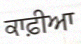
ਕਾਫ਼ੀਆ